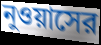
নুওয়াসের